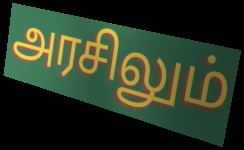
அரசிலும்